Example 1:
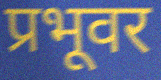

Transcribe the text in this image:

प्रभूवर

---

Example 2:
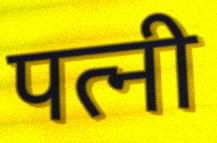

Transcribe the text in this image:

पत्‍नी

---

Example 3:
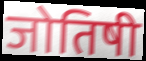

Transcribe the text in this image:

जोतिषी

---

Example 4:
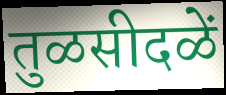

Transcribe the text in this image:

तुळसीदळें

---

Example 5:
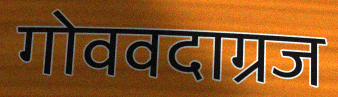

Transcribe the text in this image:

गोववदाग्रज